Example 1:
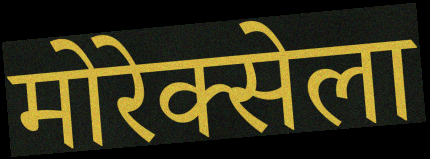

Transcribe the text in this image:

मोरेक्सेला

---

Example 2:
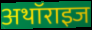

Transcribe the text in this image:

अथॉराइज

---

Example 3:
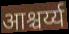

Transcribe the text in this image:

आश्चर्य्य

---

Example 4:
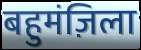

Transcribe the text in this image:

बहुमंज़िला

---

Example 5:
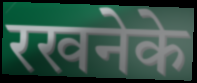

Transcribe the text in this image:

रखनेके